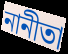
নানীতা